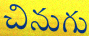
చినుగు